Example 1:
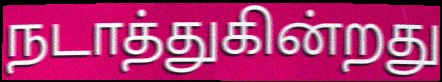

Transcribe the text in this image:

நடாத்துகின்றது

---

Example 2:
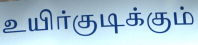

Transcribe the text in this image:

உயிர்குடிக்கும்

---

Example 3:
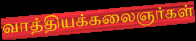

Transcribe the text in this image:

வாத்தியக்கலைஞர்கள்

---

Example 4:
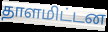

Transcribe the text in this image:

தாளமிட்டன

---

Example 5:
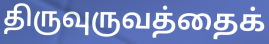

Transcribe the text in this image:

திருவுருவத்தைக்